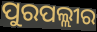
ପୁରପଲ୍ଲୀର